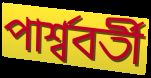
পার্শ্ববর্তী